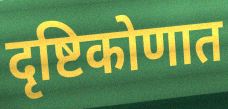
दृष्टिकोणात